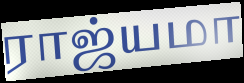
ராஜ்யமா